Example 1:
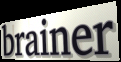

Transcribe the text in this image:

brainer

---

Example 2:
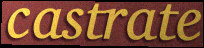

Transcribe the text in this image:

castrate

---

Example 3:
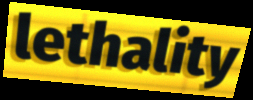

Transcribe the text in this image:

lethality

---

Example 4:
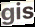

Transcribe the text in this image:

gis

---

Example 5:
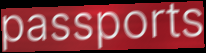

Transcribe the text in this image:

passports